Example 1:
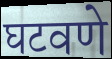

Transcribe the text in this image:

घटवणे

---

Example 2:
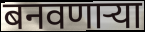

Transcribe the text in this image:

बनवणाऱ्या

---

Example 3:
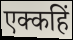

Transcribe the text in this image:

एक्कहिं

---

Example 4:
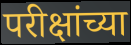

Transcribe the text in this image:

परीक्षांच्या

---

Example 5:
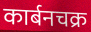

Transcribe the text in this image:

कार्बनचक्र